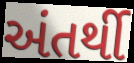
અંતર્થી